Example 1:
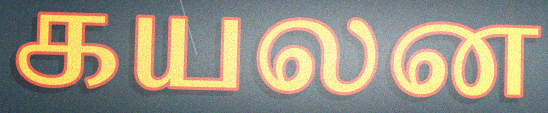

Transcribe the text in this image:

கயலன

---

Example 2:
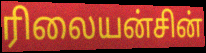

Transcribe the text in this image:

ரிலையன்சின்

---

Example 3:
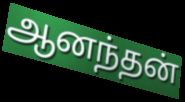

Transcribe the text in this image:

ஆனந்தன்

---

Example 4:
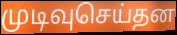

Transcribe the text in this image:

முடிவுசெய்தன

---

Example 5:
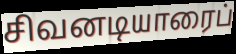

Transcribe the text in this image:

சிவனடியாரைப்